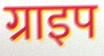
ग्राइप